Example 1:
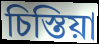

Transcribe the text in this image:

চিস্তিয়া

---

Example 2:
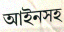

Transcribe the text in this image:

আইনসহ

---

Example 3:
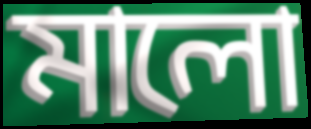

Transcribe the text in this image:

মালো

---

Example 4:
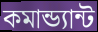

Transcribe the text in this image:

কমান্ড্যান্ট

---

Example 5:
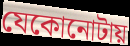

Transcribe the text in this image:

যেকোনোটায়